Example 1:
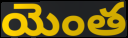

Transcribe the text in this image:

యెంత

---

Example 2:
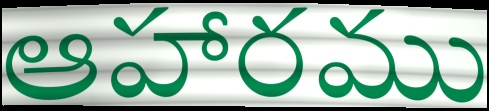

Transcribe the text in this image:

ఆహారము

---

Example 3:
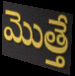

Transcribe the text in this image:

మొత్తే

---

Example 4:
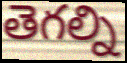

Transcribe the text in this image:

తెగల్ని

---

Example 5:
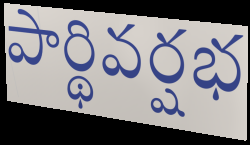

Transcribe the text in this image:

పార్థివర్షభ